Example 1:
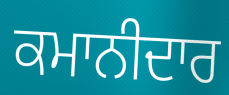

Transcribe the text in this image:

ਕਮਾਨੀਦਾਰ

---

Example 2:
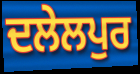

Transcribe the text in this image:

ਦਲੇਲਪੁਰ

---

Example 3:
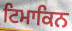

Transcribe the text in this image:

ਟਿਮਾਕਿਨ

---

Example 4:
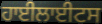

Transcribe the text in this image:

ਹਾਈਲਾਈਟਸ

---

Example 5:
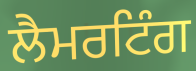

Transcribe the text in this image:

ਲੈਮਰਟਿੰਗ